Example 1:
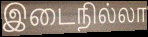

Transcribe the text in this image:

இடைநில்லா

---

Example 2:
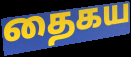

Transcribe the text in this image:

தைகய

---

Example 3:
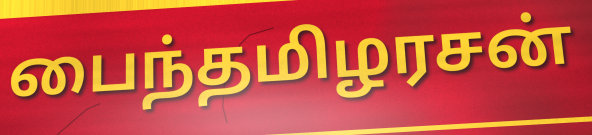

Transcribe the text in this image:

பைந்தமிழரசன்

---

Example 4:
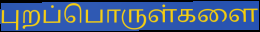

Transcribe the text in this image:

புறப்பொருள்களை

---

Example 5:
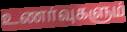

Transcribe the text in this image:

உணர்வுகளும்